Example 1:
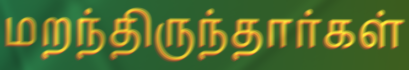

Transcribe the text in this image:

மறந்திருந்தார்கள்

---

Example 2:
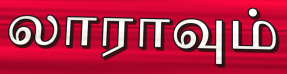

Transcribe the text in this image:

லாராவும்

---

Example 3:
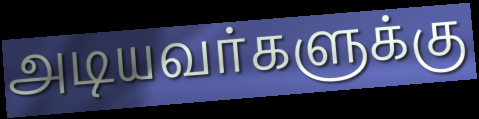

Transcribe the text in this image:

அடியவர்களுக்கு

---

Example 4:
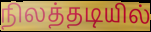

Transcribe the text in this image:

நிலத்தடியில்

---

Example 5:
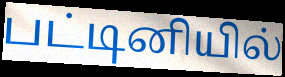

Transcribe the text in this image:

பட்டினியில்